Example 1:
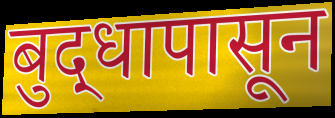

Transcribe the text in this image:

बुद्धापासून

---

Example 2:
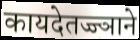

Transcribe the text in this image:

कायदेतज्ज्ञाने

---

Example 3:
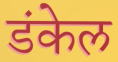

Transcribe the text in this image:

डंकेल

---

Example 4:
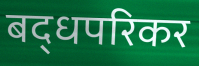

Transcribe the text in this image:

बद्धपरिकर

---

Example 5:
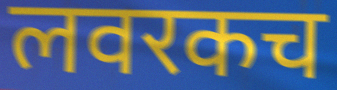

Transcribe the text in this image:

लवरकच